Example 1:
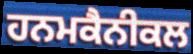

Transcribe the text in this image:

ਹਨਮਕੈਨੀਕਲ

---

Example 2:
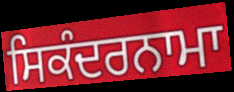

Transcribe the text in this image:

ਸਿਕੰਦਰਨਾਮਾ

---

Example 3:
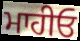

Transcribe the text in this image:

ਮਾਹੀਓ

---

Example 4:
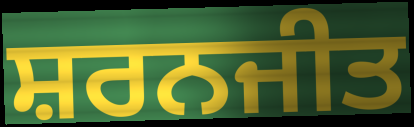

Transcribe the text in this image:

ਸ਼ਰਨਜੀਤ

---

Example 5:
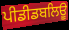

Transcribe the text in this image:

ਪੀਡੀਡਬਲਿਊ